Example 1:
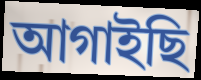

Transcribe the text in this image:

আগাইছি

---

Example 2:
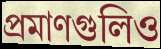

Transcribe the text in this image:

প্রমাণগুলিও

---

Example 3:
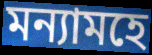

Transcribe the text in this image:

মন্যামহে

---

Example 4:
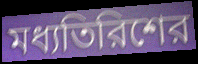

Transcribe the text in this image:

মধ্যতিরিশের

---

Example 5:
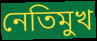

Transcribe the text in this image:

নেতিমুখ